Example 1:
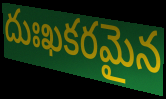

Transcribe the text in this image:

దుఃఖకరమైన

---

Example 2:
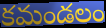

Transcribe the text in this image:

కమండలం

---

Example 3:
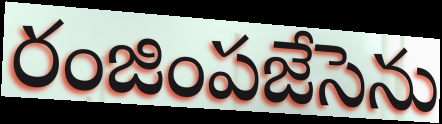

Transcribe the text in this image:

రంజింపజేసెను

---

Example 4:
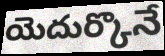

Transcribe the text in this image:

యెదుర్కొనే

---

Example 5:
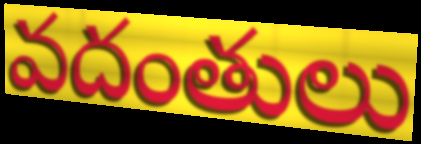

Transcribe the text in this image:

వదంతులు